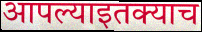
आपल्याइतक्याच